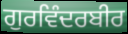
ਗੁਰਵਿੰਦਰਬੀਰ